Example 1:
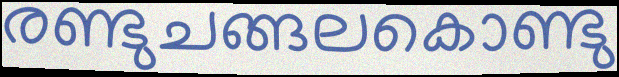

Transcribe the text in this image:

രണ്ടുചങ്ങലകൊണ്ടു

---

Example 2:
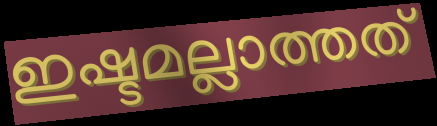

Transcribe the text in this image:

ഇഷ്ടമല്ലാത്തത്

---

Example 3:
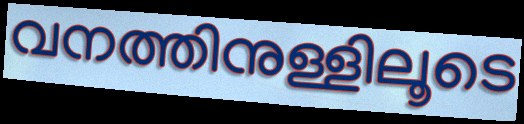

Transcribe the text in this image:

വനത്തിനുള്ളിലൂടെ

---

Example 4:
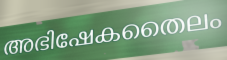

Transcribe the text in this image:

അഭിഷേകതൈലം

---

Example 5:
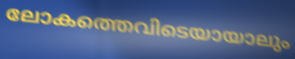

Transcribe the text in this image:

ലോകത്തെവിടെയായാലും